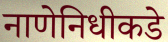
नाणेनिधीकडे